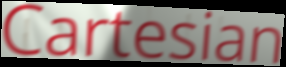
Cartesian